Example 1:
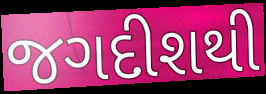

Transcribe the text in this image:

જગદીશથી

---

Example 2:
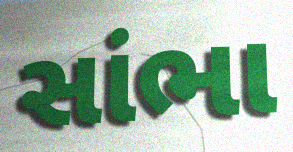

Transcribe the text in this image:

સાંભા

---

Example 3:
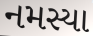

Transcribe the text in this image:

નમસ્યા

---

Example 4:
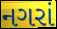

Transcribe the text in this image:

નગરાં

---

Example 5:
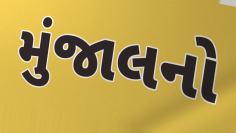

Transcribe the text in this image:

મુંજાલનો